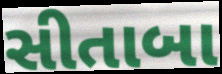
સીતાબા